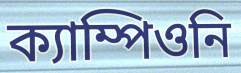
ক্যাম্পিওনি